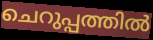
ചെറുപ്പത്തിൽ